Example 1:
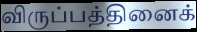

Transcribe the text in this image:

விருப்பத்தினைக்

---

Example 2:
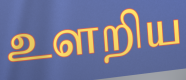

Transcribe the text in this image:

உளறிய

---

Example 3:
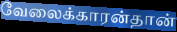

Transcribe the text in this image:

வேலைக்காரன்தான்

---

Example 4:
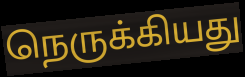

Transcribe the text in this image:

நெருக்கியது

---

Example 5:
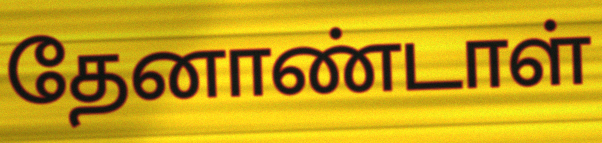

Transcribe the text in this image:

தேனாண்டாள்